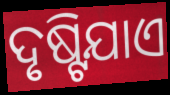
ଦୃଷ୍ଟିଯାଏ